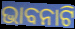
ଭାବନାଟି